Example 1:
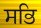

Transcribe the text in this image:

ਸਭਿ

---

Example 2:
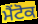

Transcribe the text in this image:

ਮੈਂਟੋਕ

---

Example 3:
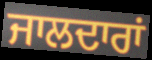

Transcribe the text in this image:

ਜਾਲਦਾਰਾਂ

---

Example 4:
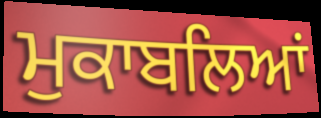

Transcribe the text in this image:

ਮੁਕਾਬਲਿਆਂ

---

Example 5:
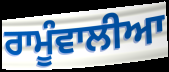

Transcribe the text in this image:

ਰਾਮੂੰਵਾਲੀਆ